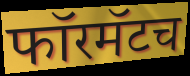
फॉरमॅटच